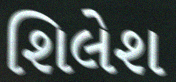
શિલેશ